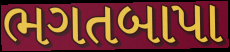
ભગતબાપા